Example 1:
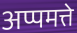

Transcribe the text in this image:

अप्पमत्ते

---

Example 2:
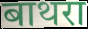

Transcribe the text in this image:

बाथरा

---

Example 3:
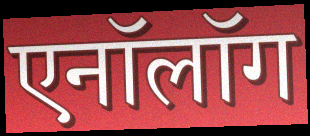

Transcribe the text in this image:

एनॉलॉग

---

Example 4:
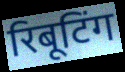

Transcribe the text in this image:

रिबूटिंग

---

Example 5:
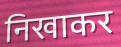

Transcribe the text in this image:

निखाकर